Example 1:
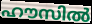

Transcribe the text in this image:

ഹൗസിൽ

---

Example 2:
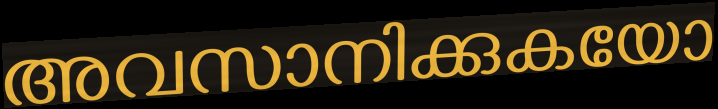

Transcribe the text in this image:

അവസാനിക്കുകയോ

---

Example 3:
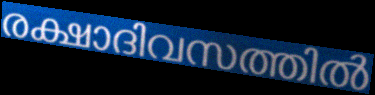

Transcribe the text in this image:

രക്ഷാദിവസത്തിൽ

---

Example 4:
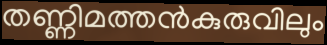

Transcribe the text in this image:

തണ്ണിമത്തൻകുരുവിലും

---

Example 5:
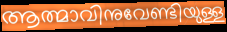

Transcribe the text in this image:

ആത്മാവിനുവേണ്ടിയുള്ള